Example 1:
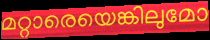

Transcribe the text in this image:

മറ്റാരെയെങ്കിലുമോ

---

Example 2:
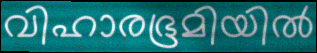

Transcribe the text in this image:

വിഹാരഭൂമിയിൽ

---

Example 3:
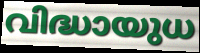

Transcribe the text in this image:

വിദ്ധായുധ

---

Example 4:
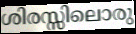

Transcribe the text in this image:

ശിരസ്സിലൊരു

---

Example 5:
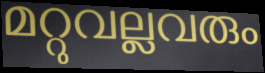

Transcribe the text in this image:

മറ്റുവല്ലവരും